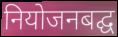
नियोजनबद्घ